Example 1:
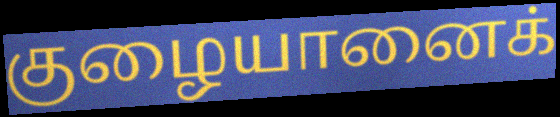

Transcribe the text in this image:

குழையானைக்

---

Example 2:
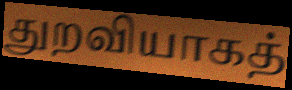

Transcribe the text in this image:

துறவியாகத்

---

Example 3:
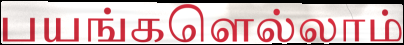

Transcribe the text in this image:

பயங்களெல்லாம்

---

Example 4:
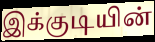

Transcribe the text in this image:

இக்குடியின்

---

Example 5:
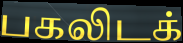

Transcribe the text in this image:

பகலிடக்